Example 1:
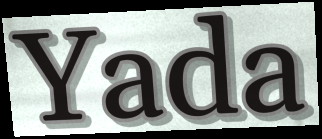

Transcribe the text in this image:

Yada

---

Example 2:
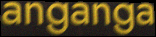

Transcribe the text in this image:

anganga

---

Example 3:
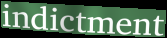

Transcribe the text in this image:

indictment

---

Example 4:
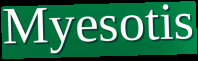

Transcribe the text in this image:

Myesotis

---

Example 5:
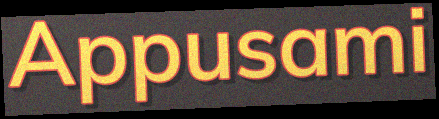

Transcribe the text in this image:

Appusami